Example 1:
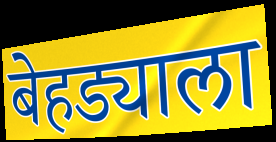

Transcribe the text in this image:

बेहड्याला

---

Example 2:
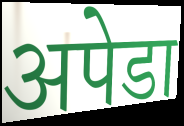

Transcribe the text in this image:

अपेडा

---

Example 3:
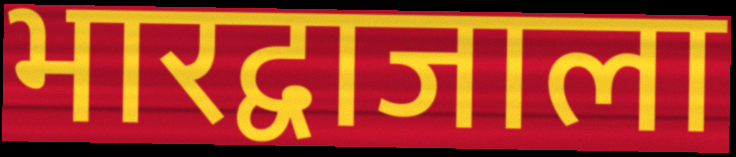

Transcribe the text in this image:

भारद्वाजाला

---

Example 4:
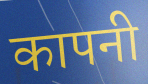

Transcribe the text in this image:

कापनी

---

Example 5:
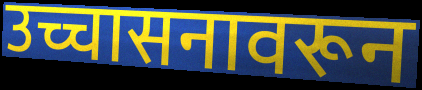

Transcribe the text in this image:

उच्चासनावरून